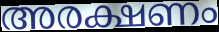
അരക്ഷണം